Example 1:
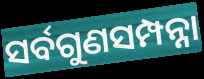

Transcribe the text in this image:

ସର୍ବଗୁଣସମ୍ପନ୍ନା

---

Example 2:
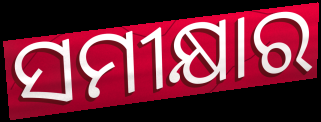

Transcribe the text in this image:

ସମୀକ୍ଷାର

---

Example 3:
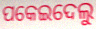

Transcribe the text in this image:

ପକେଇଦେଲୁ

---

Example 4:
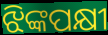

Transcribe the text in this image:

ଝିଙ୍କପକ୍ଷୀ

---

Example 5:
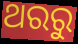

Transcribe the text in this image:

ଥରରୁ